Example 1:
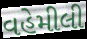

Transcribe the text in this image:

વહેમીલી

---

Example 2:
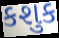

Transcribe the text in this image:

કશુક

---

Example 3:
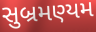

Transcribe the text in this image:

સુબ્રમણ્યમ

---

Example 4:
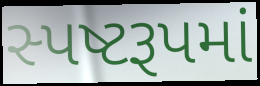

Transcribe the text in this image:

સ્પષ્ટરૂપમાં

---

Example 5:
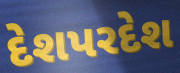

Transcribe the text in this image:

દેશપરદેશ